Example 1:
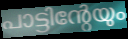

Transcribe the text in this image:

പാട്ടിന്റേയും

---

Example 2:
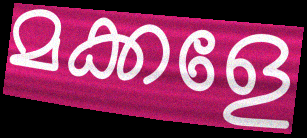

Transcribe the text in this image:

മക്കളേ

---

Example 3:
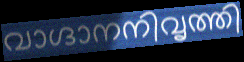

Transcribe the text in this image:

വാഗ്ദാനനിവൃത്തി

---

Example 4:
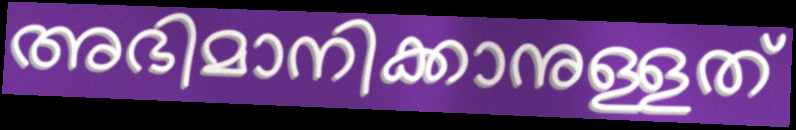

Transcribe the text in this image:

അഭിമാനിക്കാനുള്ളത്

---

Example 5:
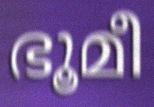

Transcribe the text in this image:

ഭൂമീ